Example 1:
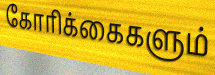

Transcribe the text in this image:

கோரிக்கைகளும்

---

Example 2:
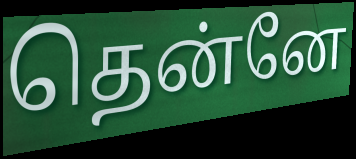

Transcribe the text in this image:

தென்னே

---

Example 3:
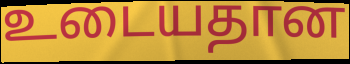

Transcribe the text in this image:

உடையதான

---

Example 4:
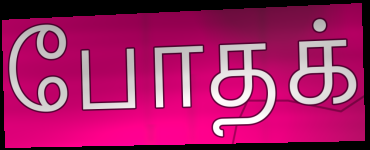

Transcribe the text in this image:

போதக்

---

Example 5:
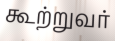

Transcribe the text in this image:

கூற்றுவர்